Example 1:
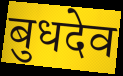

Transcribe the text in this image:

बुधदेव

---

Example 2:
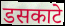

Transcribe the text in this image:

डसकाटे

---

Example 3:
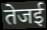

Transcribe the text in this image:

तेजई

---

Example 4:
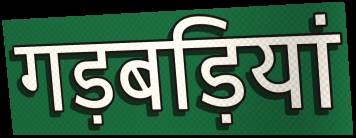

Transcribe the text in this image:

गड़बड़ियां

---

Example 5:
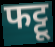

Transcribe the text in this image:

फट्टू